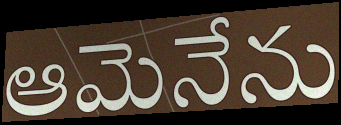
ఆమెనేను